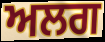
ਅਲਗ